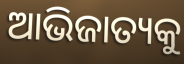
ଆଭିଜାତ୍ୟକୁ